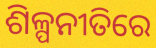
ଶିଳ୍ପନୀତିରେ